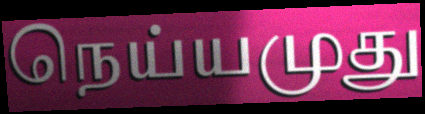
நெய்யமுது